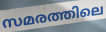
സമരത്തിലെ